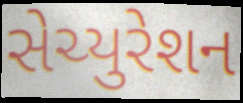
સેચ્યુરેશન